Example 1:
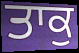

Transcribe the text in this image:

ਤਾਕੁ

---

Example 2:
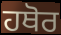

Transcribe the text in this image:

ਹਥੋਰ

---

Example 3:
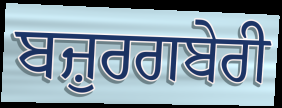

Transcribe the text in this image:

ਬਜ਼ੁਰਗਬੇਰੀ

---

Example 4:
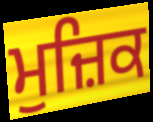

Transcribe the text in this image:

ਮੁਜ਼ਿਕ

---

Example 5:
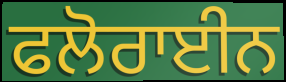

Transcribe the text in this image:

ਫਲੋਰਾਈਨ